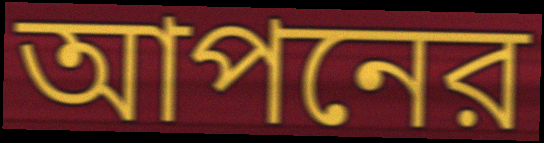
আপনের